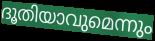
ദൂതിയാവുമെന്നും